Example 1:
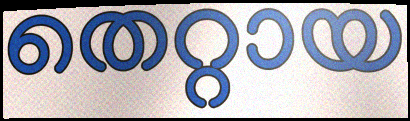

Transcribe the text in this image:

തെറ്റായ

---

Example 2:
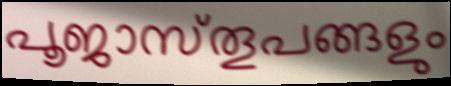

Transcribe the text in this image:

പൂജാസ്‌തൂപങ്ങളും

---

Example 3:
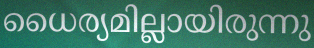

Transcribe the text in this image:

ധൈര്യമില്ലായിരുന്നു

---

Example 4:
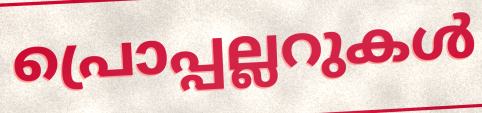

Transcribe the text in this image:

പ്രൊപ്പല്ലറുകൾ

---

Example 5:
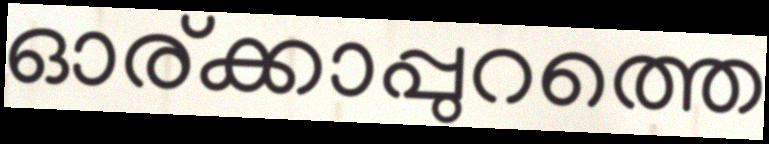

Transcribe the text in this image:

ഓര്ക്കാപ്പുറത്തെ